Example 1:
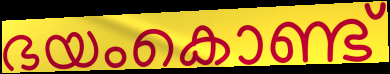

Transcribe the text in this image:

ഭയംകൊണ്ട്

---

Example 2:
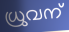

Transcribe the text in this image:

ധ്രുവന്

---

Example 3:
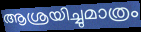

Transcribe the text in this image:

ആശ്രയിച്ചുമാത്രം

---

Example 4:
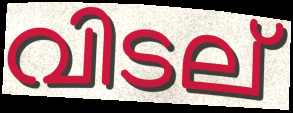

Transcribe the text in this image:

വിടല്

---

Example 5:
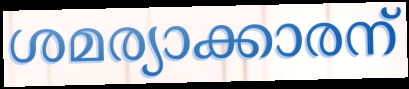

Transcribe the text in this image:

ശമര്യാക്കാരന്